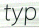
typ